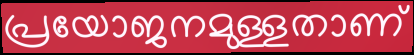
പ്രയോജനമുള്ളതാണ്